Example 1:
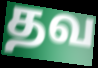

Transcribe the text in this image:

தவ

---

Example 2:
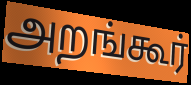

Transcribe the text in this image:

அறங்கூர்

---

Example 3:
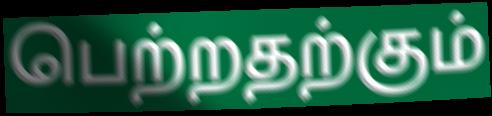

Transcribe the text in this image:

பெற்றதற்கும்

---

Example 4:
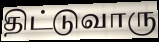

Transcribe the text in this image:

திட்டுவாரு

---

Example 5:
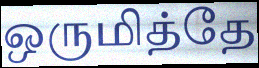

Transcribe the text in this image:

ஒருமித்தே